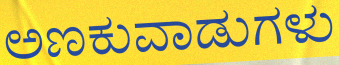
ಅಣಕುವಾಡುಗಳು